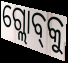
ଗ୍ଲୋବ୍‌କୁ